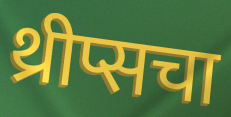
थ्रीप्सचा